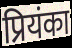
प्रियंका